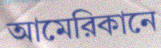
আমেরিকানে